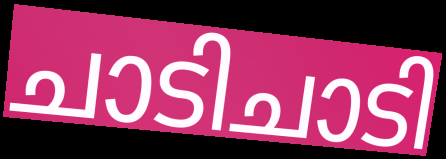
ചാടിചാടി